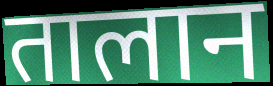
तालान